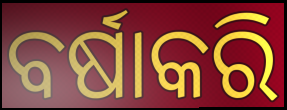
ବର୍ଷାକରି